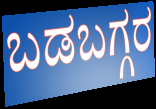
ಬಡಬಗ್ಗರ